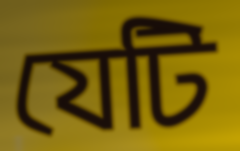
যেটি